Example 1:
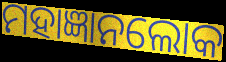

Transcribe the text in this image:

ମହାଜ୍ଞାନଲୋକ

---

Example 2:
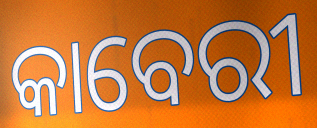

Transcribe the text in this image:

କାବେରୀ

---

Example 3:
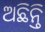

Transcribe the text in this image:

ଅଛିନ୍ତି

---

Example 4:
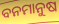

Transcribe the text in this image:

ବନମାନୁଷ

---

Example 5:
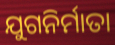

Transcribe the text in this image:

ଯୁଗନିର୍ମାତା